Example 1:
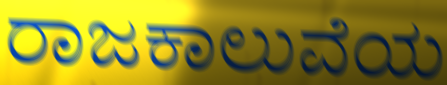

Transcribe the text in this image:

ರಾಜಕಾಲುವೆಯ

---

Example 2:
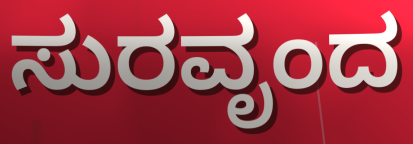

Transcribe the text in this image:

ಸುರವೃಂದ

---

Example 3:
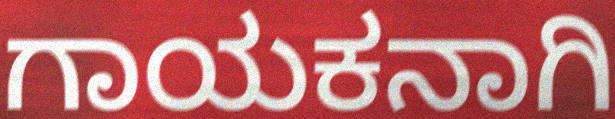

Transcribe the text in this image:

ಗಾಯಕನಾಗಿ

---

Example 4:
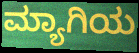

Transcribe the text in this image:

ಮ್ಯಾಗಿಯ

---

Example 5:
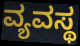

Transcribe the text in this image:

ವ್ಯವಸ್ಥ